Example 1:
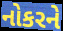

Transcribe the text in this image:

નોકરને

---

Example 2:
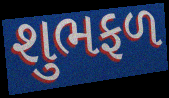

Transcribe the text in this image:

શુભફળ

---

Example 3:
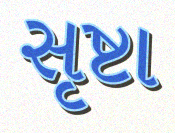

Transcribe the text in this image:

સૃષ્ટા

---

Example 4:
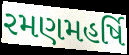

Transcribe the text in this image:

રમણમહર્ષિ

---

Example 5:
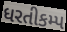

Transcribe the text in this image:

ધરતીકમ્પ